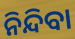
ନିନ୍ଦିବା